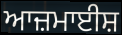
ਆਜ਼ਮਾਈਸ਼